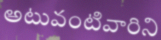
అటువంటివారిని